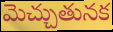
మెచ్చుతునక